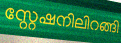
സ്റ്റേഷനിലിറങ്ങി